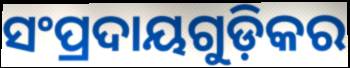
ସଂପ୍ରଦାୟଗୁଡ଼ିକର